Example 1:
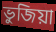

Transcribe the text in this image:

ভুজিয়া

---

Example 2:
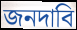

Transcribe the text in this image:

জনদাবি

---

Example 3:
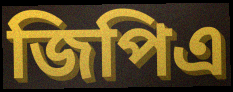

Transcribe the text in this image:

জিপিএ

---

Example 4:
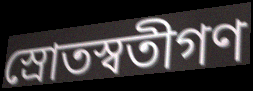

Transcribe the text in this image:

স্রোতস্বতীগণ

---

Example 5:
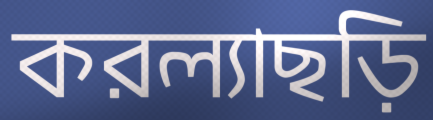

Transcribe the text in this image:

করল্যাছড়ি